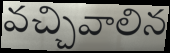
వచ్చివాలిన